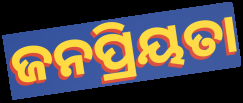
ଜନପ୍ରିୟତା